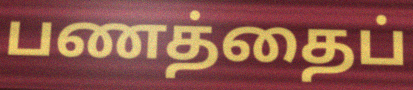
பணத்தைப்